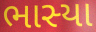
ભાસ્યા